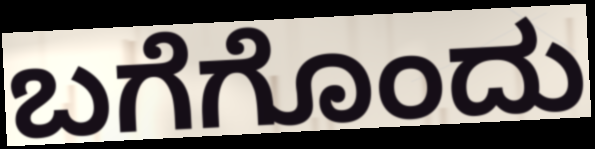
ಬಗೆಗೊಂದು